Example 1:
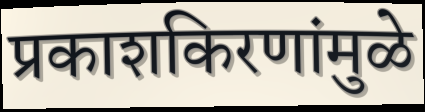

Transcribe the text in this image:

प्रकाशकिरणांमुळे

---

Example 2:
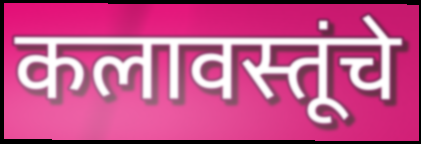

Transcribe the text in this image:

कलावस्तूंचे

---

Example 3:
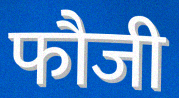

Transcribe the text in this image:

फौजी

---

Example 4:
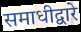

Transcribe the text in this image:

समाधीद्वारे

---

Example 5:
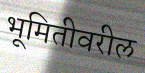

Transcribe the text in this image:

भूमितीवरील